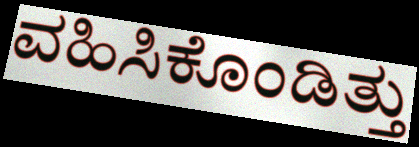
ವಹಿಸಿಕೊಂಡಿತ್ತು